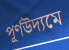
পূর্ণউদ্যমে